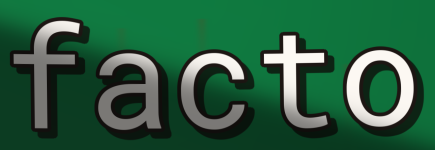
facto